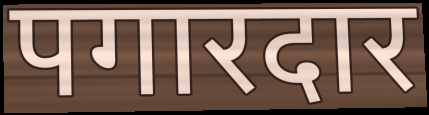
पगारदार